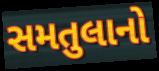
સમતુલાનો